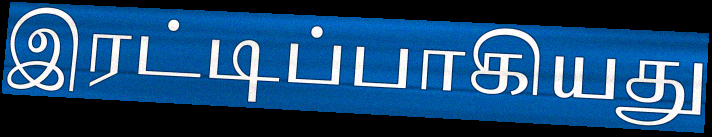
இரட்டிப்பாகியது